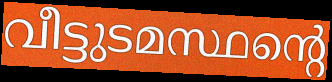
വീട്ടുടമസ്ഥന്റെ